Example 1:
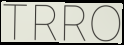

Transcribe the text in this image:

TRRO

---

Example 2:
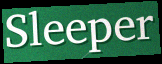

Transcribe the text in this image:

Sleeper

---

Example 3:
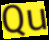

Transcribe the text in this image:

Qu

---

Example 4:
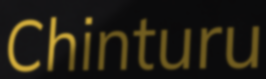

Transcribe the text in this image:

Chinturu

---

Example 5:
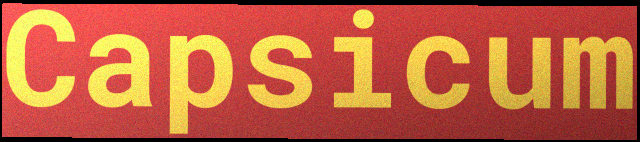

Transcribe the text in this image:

Capsicum